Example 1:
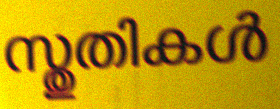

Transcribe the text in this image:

സ്തുതികൾ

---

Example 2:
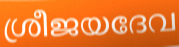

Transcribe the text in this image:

ശ്രീജയദേവ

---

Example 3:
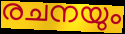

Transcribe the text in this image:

രചനയും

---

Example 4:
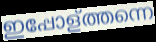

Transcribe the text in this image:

ഇപ്പോള്ത്തന്നെ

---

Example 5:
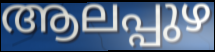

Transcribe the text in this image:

ആലപ്പുഴ